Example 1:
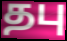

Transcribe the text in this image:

தபு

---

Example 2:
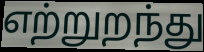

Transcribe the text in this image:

எற்றுறந்து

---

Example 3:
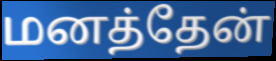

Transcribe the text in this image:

மனத்தேன்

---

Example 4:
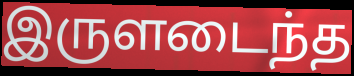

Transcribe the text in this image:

இருளடைந்த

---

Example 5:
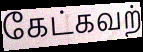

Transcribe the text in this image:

கேட்கவற்